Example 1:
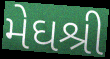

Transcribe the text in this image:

મેઘશ્રી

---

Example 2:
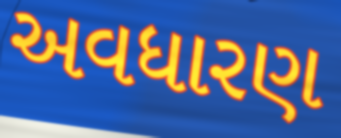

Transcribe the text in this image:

અવધારણ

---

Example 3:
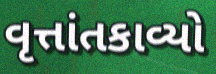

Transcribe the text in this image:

વૃત્તાંતકાવ્યો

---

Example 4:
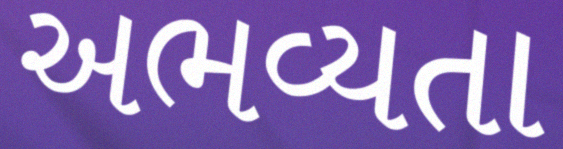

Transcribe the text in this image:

અભવ્યતા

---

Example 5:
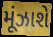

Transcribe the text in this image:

મૂંઝાશે